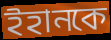
ইহানকে